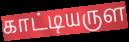
காட்டியருள